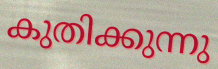
കുതിക്കുന്നു